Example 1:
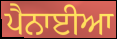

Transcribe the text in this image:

ਪੈਨਾਈਆ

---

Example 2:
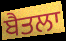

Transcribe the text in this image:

ਬੈਤਲਾ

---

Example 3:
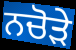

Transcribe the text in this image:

ਨਚੋੜੇ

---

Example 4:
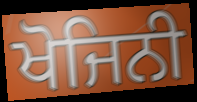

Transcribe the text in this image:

ਖੋਜਿਨੀ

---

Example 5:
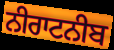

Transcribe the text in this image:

ਨੀਰਾਟਨੀਬ